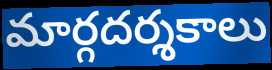
మార్గదర్శకాలు